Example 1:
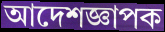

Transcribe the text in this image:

আদেশজ্ঞাপক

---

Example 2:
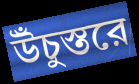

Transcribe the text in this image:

উঁচুস্তরে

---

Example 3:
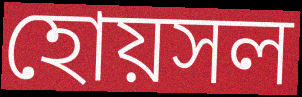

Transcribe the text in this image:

হোয়সল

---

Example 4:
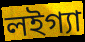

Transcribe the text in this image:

লইগ্যা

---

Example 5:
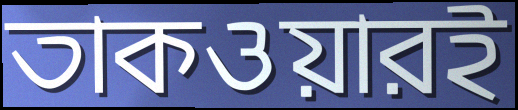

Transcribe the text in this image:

তাকওয়ারই